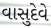
વાસુદેવે